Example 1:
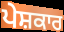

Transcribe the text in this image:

ਪੇਸ਼ਕਾਰ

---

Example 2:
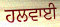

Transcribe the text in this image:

ਹਲਵਾਈ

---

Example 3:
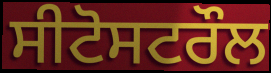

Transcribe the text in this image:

ਸੀਟੋਸਟਰੌਲ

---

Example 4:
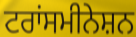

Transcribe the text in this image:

ਟਰਾਂਸਮੀਨੇਸ਼ਨ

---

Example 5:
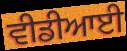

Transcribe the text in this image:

ਵੀਡੀਆਈ